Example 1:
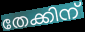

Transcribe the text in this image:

തേക്കിന്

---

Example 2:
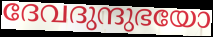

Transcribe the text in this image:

ദേവദുന്ദുഭയോ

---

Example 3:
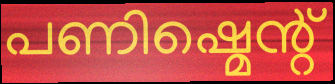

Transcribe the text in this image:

പണിഷ്മെന്റ്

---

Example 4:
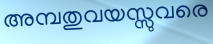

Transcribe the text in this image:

അമ്പതുവയസ്സുവരെ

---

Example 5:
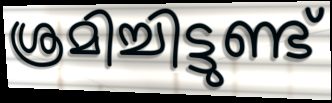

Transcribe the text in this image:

ശ്രമിച്ചിട്ടുണ്ട്